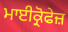
ਮਾਈਕ੍ਰੋਫੇਜ਼